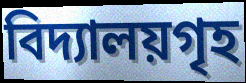
বিদ্যালয়গৃহ